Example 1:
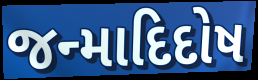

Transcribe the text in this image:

જન્માદિદોષ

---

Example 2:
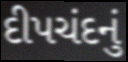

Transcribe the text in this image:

દીપચંદનું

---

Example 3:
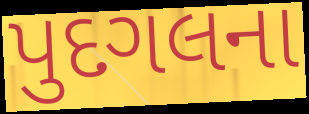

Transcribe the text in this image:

પુદગલના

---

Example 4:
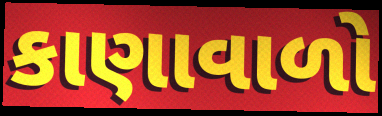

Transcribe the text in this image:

કાણાવાળો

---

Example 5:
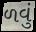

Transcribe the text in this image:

ળવું